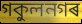
গকুলনগৰ